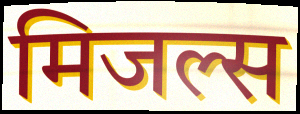
मिजल्स